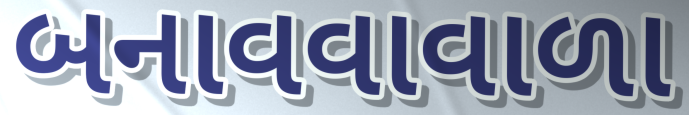
બનાવવાવાળા